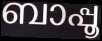
ബാപ്പൂ